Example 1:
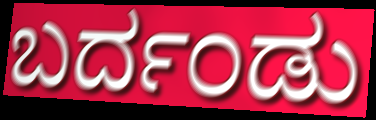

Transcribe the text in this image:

ಬರ್ದಂಡು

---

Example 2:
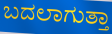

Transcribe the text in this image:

ಬದಲಾಗುತ್ತಾ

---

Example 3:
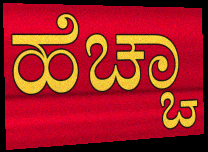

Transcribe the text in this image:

ಹೆಚ್ಚಾ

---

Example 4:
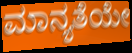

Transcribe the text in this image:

ಮಾನ್ಯತೆಯೇ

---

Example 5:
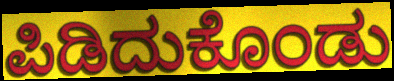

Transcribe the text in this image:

ಪಿಡಿದುಕೊಂಡು